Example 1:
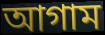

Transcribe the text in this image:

আগাম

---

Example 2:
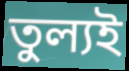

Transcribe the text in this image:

তুল্যই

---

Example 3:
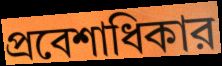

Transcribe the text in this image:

প্রবেশাধিকার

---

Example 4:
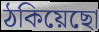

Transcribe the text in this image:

ঠকিয়েছো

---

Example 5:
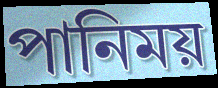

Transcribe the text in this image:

পানিময়